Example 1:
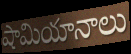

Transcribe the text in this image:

షామియానాలు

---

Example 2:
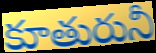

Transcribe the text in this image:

కూతురునీ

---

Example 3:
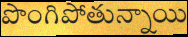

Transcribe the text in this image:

పొంగిపోతున్నాయి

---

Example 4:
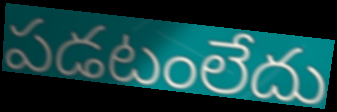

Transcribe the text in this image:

పడటంలేదు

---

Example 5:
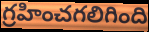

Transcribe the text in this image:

గ్రహించగలిగింది